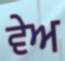
ਵੇਅ